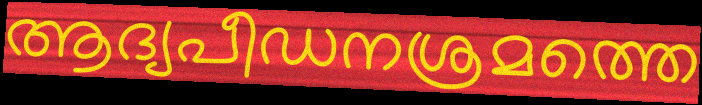
ആദ്യപീഡനശ്രമത്തെ